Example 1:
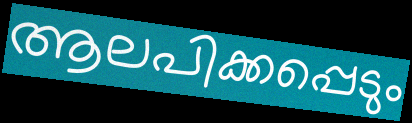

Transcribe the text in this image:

ആലപിക്കപ്പെടും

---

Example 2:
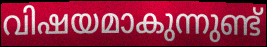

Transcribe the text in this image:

വിഷയമാകുന്നുണ്ട്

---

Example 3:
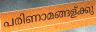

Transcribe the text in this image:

പരിണാമങ്ങള്ക്കു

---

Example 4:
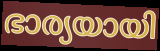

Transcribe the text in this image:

ഭാര്യയായി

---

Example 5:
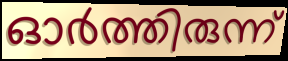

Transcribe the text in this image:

ഓർത്തിരുന്ന്